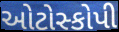
ઓટોસ્કોપી